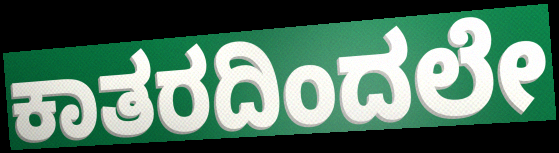
ಕಾತರದಿಂದಲೇ